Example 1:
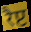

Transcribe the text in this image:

रैप्ट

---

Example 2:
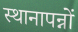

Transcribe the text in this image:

स्थानापन्नों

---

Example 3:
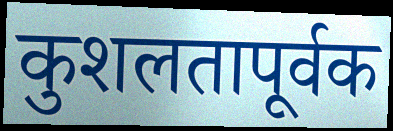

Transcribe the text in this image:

कुशलतापूर्वक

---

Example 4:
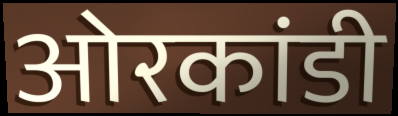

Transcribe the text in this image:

ओरकांडी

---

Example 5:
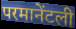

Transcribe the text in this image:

परमानेंटली